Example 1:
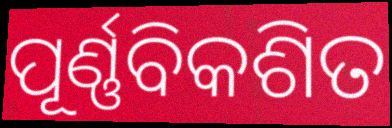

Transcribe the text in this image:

ପୂର୍ଣ୍ଣବିକଶିତ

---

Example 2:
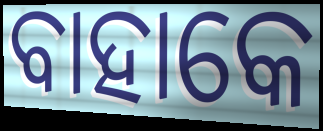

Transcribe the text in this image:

ବାହାକେ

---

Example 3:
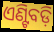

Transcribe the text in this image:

ଏଣ୍ଟିବଡ଼ି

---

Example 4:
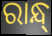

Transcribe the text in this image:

ରାନ୍ଧ୍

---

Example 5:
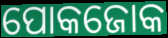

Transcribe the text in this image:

ପୋକଜୋକ